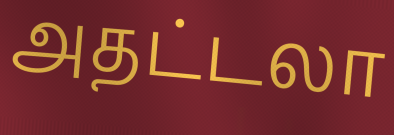
அதட்டலா